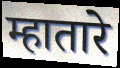
म्हातारे